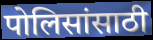
पोलिसांसाठी